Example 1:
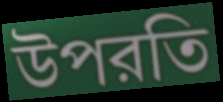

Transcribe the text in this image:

উপরতি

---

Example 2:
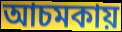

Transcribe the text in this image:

আচমকায়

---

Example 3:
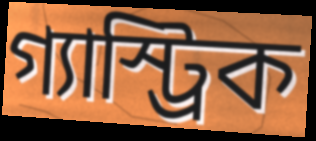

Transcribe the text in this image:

গ্যাস্ট্রিক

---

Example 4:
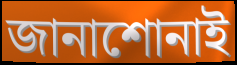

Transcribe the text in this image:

জানাশোনাই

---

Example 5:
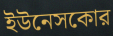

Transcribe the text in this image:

ইউনেসকোর